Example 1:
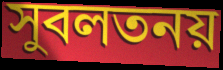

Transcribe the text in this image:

সুবলতনয়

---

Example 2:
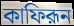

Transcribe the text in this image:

কাফিরূন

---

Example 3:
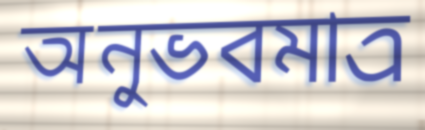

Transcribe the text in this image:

অনুভবমাত্র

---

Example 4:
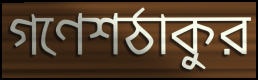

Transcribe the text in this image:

গণেশঠাকুর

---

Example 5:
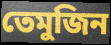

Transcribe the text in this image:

তেমুজিন